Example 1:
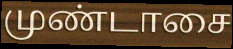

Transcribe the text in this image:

முண்டாசை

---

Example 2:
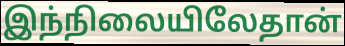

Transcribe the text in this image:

இந்நிலையிலேதான்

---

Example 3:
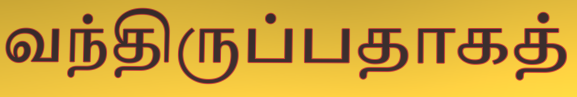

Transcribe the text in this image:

வந்திருப்பதாகத்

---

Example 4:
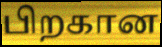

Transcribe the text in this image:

பிறகான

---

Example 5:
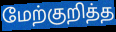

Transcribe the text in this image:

மேற்குறித்த